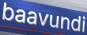
baavundi